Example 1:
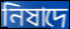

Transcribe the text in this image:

নিষাদে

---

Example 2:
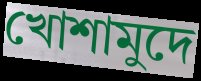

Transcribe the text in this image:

খোশামুদে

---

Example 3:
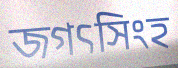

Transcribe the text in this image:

জগৎসিংহ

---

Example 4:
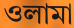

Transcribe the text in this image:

ওলামা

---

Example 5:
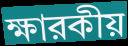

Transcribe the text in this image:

ক্ষারকীয়